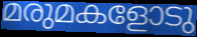
മരുമകളോടു